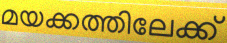
മയക്കത്തിലേക്ക്